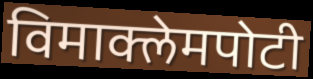
विमाक्लेमपोटी